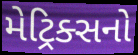
મેટ્રિક્સનો